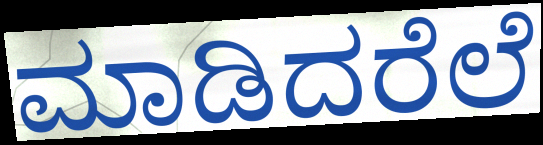
ಮಾಡಿದರೆಲೆ